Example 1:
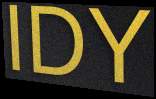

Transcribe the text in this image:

IDY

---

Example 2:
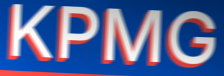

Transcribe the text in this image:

KPMG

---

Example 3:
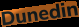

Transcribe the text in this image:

Dunedin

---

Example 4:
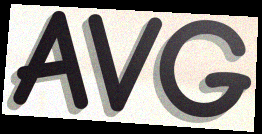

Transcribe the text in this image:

AVG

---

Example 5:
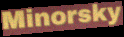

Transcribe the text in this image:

Minorsky